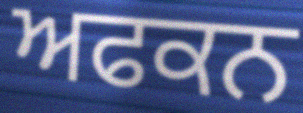
ਅਫਕਨ